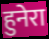
हुनेरा